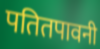
पतितपावनी